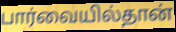
பார்வையில்தான்